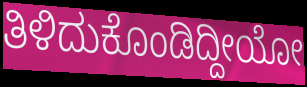
ತಿಳಿದುಕೊಂಡಿದ್ದೀಯೋ